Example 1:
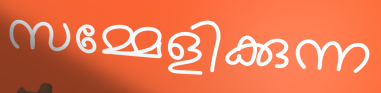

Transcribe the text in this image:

സമ്മേളിക്കുന്ന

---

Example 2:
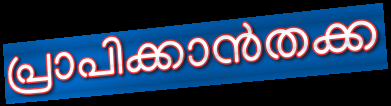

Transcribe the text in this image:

പ്രാപിക്കാൻതക്ക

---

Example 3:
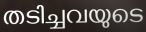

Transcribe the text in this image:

തടിച്ചവയുടെ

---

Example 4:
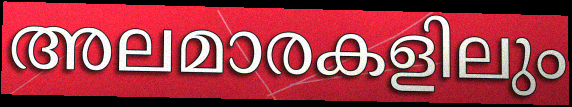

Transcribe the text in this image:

അലമാരകളിലും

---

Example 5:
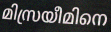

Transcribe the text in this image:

മിസ്രയീമിനെ